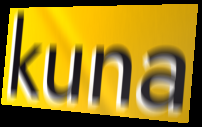
kuna